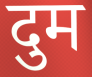
दुम